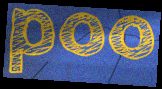
poo